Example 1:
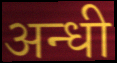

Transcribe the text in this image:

अन्धी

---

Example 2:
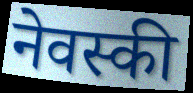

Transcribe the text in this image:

नेवस्की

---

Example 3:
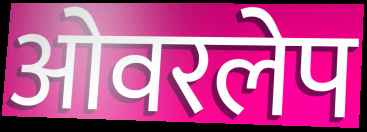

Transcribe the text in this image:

ओवरलेप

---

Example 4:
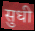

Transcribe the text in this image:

सुधी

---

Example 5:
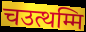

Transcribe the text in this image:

चउत्थम्मि